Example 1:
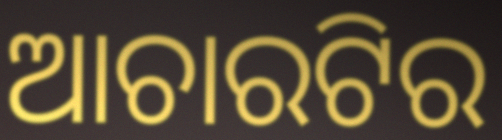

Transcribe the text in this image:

ଆଚାରଟିର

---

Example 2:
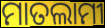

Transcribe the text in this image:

ମାତଲାମୀ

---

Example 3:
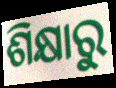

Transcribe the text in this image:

ଶିକ୍ଷାରୁ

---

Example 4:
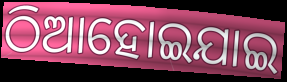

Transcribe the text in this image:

ଠିଆହୋଇଯାଇ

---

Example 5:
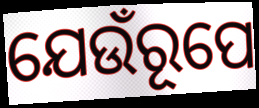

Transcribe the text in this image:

ଯେଉଁରୂପେ